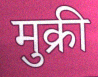
मुक्री